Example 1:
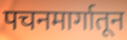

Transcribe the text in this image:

पचनमार्गातून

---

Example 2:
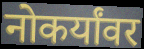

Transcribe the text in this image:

नोकर्यांवर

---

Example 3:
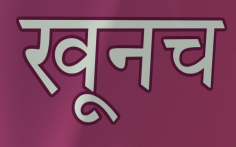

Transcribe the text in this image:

खूनच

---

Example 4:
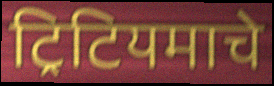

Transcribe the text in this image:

ट्रिटियमाचे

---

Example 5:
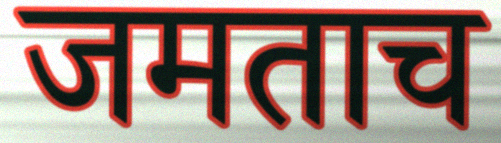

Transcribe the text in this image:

जमताच